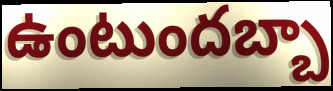
ఉంటుందబ్బా